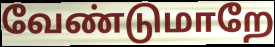
வேண்டுமாறே